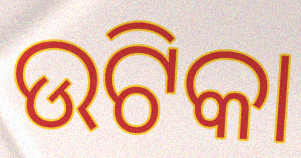
ଉଟିକା